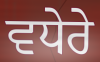
ਵਧੇਰੇ